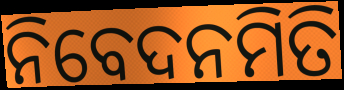
ନିବେଦନମିତି